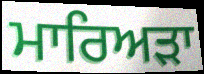
ਮਾਰਿਅੜਾ